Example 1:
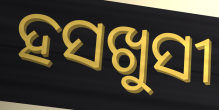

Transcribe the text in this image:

ହସଖୁସୀ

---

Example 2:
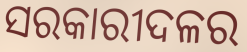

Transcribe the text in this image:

ସରକାରୀଦଳର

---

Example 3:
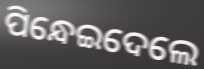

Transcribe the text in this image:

ପିନ୍ଧେଇଦେଲେ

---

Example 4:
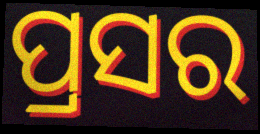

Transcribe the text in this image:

ପ୍ରସର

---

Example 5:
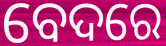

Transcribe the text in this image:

ବେଦରେ